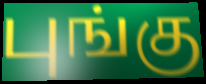
புங்கு